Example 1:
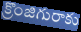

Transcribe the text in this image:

క్రొంజిగురాకు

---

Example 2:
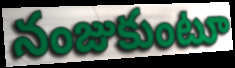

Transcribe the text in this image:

నంజుకుంటూ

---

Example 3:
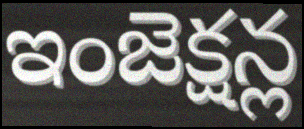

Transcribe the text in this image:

ఇంజెక్షన్ల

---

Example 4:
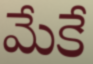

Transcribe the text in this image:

మేకే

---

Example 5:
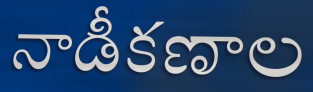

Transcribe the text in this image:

నాడీకణాల